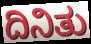
ದಿನಿತು